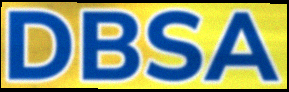
DBSA